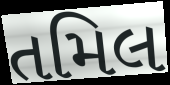
તમિલ